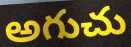
అగుచు